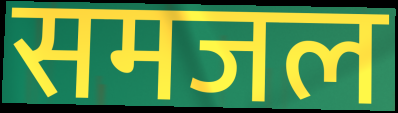
समजल